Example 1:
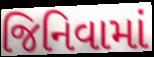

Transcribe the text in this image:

જિનિવામાં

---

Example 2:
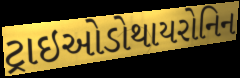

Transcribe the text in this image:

ટ્રાઇઓડોથાયરોનિન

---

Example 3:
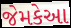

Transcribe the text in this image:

જેમકેઆ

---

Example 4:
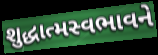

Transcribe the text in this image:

શુદ્ધાત્મસ્વભાવને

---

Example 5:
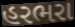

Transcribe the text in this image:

હરભરા